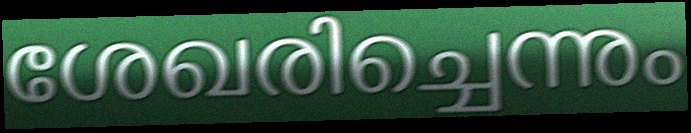
ശേഖരിച്ചെന്നും